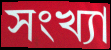
সংখ্যা